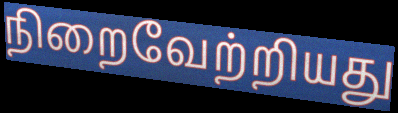
நிறைவேற்றியது